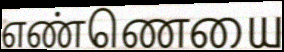
எண்ணெயை